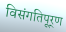
विसंगतिपूर्ण